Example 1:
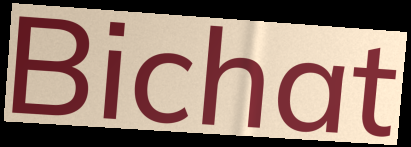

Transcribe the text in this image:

Bichat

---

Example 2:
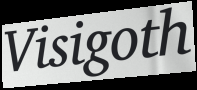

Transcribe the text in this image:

Visigoth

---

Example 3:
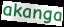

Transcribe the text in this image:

akanga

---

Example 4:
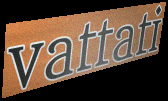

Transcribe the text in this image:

vattati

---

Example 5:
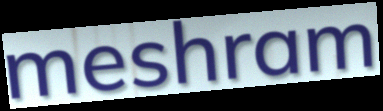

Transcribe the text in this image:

meshram